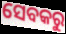
ସେବକରୁ